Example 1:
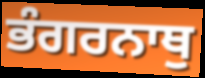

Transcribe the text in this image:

ਭੰਗਰਨਾਥੁ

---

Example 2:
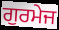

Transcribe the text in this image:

ਗੁਰਮੇਜ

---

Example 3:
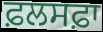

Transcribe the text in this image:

ਫ਼ਲਸਫ਼ਾ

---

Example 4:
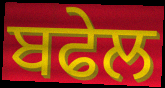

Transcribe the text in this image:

ਬਫੇਲ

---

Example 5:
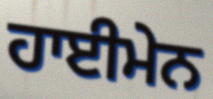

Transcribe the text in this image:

ਹਾਈਮੇਨ